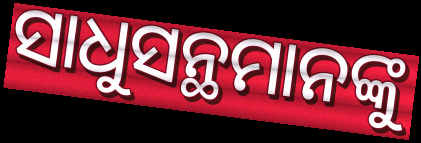
ସାଧୁସନ୍ଥମାନଙ୍କୁ